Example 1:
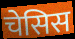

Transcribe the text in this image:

चेसिस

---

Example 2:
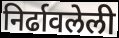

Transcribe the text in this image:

निर्ढावलेली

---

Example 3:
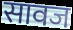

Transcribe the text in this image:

सावज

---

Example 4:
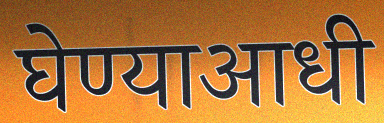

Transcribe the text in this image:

घेण्याआधी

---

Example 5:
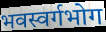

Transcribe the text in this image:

भवस्वर्गभोग